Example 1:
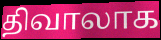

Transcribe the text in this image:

திவாலாக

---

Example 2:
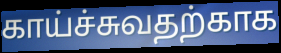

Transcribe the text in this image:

காய்ச்சுவதற்காக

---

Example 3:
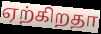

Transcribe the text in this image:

ஏற்கிறதா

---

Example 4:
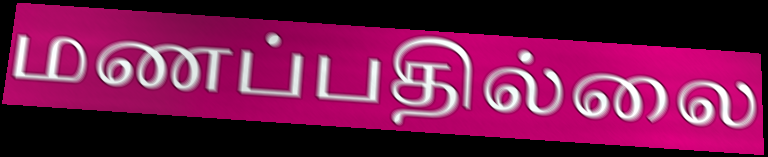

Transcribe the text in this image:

மணப்பதில்லை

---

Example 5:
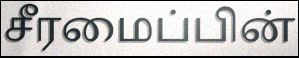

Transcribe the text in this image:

சீரமைப்பின்